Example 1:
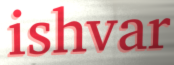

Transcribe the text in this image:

ishvar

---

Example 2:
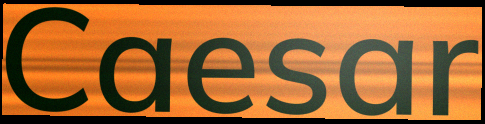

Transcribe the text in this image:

Caesar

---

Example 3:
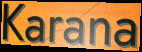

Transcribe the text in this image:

Karana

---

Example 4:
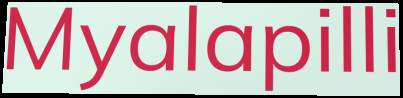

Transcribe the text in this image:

Myalapilli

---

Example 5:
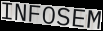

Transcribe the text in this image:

INFOSEM